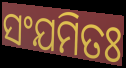
ସଂଯମିତଃ